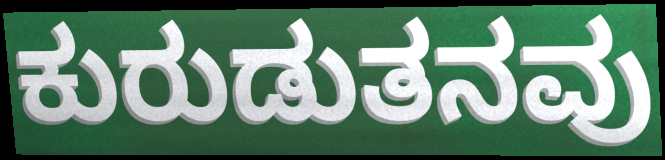
ಕುರುಡುತನವು